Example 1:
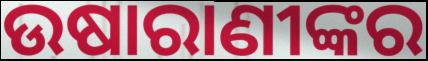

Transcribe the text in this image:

ଉଷାରାଣୀଙ୍କର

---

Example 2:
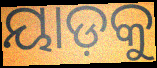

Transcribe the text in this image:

ୟାଡ଼କୁ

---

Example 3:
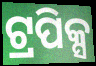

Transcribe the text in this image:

ଟ୍ରପିକ୍ସ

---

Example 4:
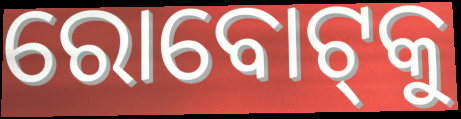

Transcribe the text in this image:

ରୋବୋଟ୍‌କୁ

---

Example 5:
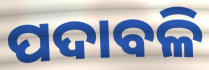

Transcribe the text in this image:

ପଦାବଳି